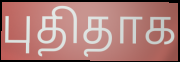
புதிதாக